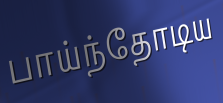
பாய்ந்தோடிய